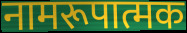
नामरूपात्मक